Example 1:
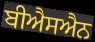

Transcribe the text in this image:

ਬੀਐਸਐਨ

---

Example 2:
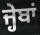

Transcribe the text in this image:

ਜ੍ਹੇਬਾਂ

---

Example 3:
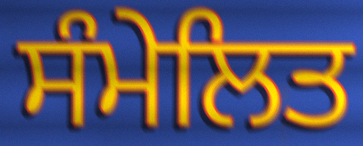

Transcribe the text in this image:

ਸੰਮੇਲਿਤ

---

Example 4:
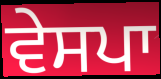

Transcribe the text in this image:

ਵੇਸਪਾ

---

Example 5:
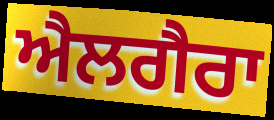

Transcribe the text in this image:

ਐਲਗੈਰਾ